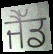
ਜੈੱਡ